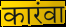
कारंवा